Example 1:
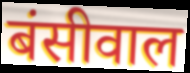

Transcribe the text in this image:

बंसीवाल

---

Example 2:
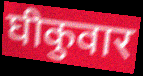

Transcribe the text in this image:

घीकुवार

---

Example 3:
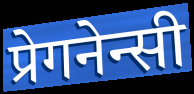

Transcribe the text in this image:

प्रेगनेन्सी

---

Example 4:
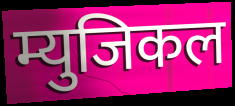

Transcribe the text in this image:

म्युजिकल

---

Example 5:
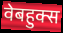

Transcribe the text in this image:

वेबहुक्स